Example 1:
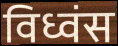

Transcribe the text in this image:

विध्वंस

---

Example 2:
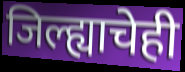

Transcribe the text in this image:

जिल्ह्याचेही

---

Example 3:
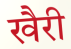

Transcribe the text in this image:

खैरी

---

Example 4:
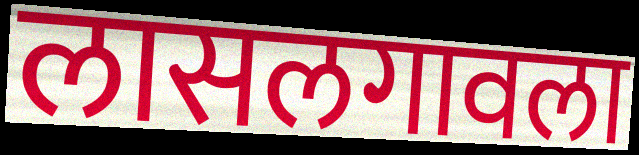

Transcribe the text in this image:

लासलगावला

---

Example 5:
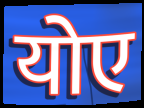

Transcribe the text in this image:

योए